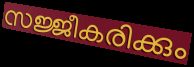
സജ്ജീകരിക്കും